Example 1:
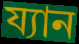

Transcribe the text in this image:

য্যান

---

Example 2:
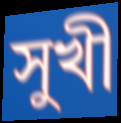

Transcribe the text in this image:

সুখী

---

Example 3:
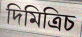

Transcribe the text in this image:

দিমিত্রিচ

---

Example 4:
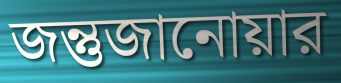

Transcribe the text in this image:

জন্তুজানোয়ার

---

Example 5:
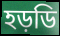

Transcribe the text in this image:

হড়ডি